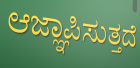
ಆಜ್ಞಾಪಿಸುತ್ತದೆ